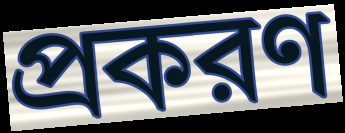
প্রকরণ